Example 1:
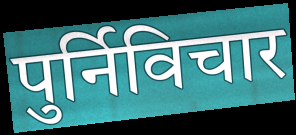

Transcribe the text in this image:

पुर्निविचार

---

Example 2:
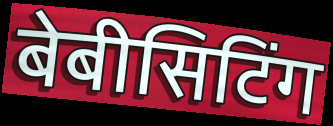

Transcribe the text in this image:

बेबीसिटिंग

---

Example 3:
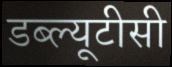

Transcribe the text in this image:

डब्ल्यूटीसी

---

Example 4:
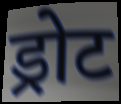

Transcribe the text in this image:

ड्रोट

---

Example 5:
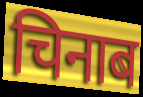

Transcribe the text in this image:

चिनाब